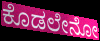
ಕೊಡಲೇನೋ